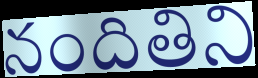
నందితిని